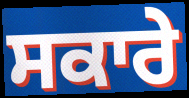
ਸਕਾਰੇ